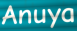
Anuya